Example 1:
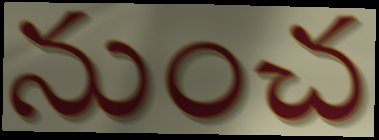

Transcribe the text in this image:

నుంచ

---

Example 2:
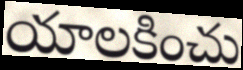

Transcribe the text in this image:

యాలకించు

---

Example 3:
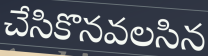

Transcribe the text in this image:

చేసికొనవలసిన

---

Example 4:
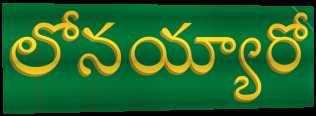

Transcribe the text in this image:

లోనయ్యారో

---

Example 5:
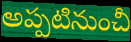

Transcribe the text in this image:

అప్పటినుంచీ